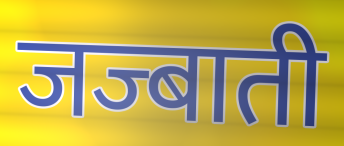
जज्‍बाती